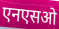
एनएसओ